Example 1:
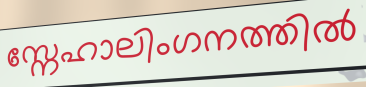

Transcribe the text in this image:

സ്നേഹാലിംഗനത്തിൽ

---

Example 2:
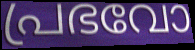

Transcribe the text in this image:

പ്രഭവോ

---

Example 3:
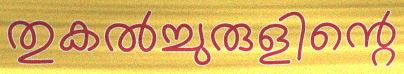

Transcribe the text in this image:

തുകൽച്ചുരുളിന്റെ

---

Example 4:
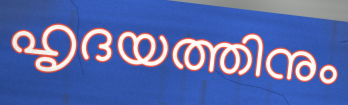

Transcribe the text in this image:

ഹൃദയത്തിനും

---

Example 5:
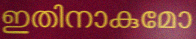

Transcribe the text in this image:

ഇതിനാകുമോ